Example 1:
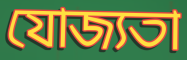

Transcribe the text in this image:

যোজ্যতা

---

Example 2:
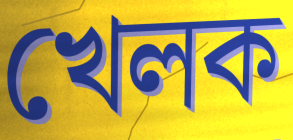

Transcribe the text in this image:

খেলক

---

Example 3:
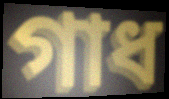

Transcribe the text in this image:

গাধ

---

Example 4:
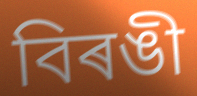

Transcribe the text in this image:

বিৰঙী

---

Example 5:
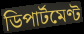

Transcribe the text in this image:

ডিপাৰ্টমেণ্ট